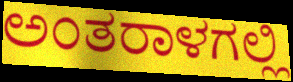
ಅಂತರಾಳಗಲ್ಲಿ